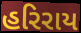
હરિરાય